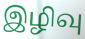
இழிவு